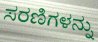
ಸರಣಿಗಳನ್ನು